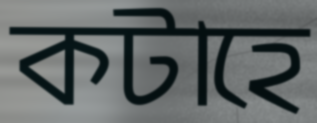
কটাহে